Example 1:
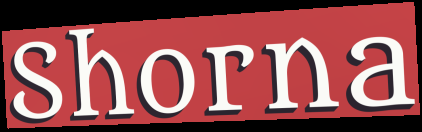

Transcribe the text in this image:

Shorna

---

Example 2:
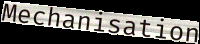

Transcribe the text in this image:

Mechanisation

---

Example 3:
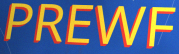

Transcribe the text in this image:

PREWF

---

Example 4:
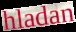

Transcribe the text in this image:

hladan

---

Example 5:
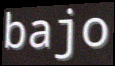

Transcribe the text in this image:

bajo